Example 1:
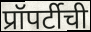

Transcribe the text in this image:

प्रॉपर्टीची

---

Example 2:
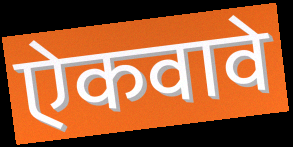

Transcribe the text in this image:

ऐकवावे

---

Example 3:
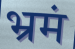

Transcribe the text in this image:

भ्रमं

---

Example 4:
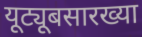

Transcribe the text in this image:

यूट्यूबसारख्या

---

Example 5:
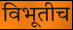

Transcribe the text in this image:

विभूतीच